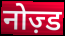
नोज़्ड